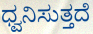
ಧ್ವನಿಸುತ್ತದೆ